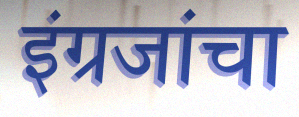
इंग्रजांचा